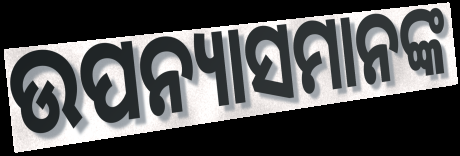
ଉପନ୍ୟାସମାନଙ୍କ